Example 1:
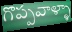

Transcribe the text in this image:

గొప్పవాళ్ళా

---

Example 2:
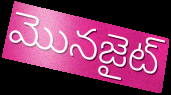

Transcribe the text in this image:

మొనజైట్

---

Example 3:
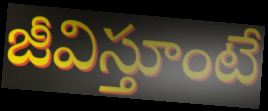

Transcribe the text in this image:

జీవిస్తూంటే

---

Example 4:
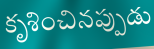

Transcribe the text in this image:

కృశించినప్పుడు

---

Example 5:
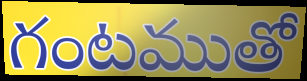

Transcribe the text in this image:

గంటముతో